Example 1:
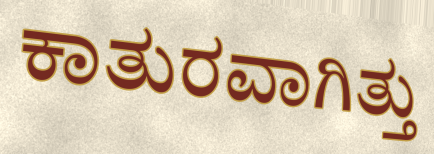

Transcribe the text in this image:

ಕಾತುರವಾಗಿತ್ತು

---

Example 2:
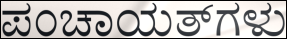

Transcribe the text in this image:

ಪಂಚಾಯತ್‌ಗಳು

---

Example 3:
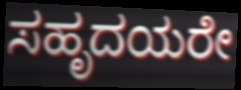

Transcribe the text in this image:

ಸಹೃದಯರೇ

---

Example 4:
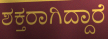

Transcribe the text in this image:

ಶಕ್ತರಾಗಿದ್ದಾರೆ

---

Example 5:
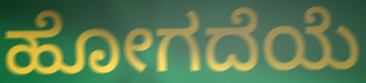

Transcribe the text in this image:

ಹೋಗದೆಯೆ